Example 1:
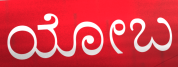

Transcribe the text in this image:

ಯೋಬ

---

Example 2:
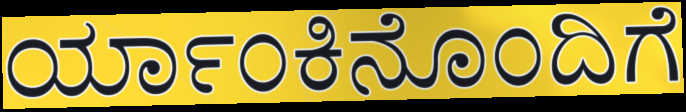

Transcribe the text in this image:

ರ್ಯಾಂಕಿನೊಂದಿಗೆ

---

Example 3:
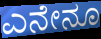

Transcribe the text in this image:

ಎನೇನೂ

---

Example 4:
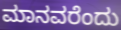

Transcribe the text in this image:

ಮಾನವರೆಂದು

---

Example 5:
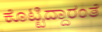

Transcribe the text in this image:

ಕೊಟ್ಟಿದ್ದಾರಂತೆ